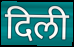
दिली